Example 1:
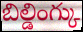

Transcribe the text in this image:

బిల్డింగ్కు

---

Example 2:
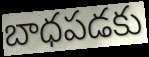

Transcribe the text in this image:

బాధపడకు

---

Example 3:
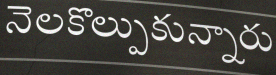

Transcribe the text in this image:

నెలకొల్పుకున్నారు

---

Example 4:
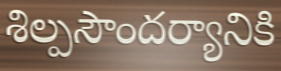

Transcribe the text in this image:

శిల్పసౌందర్యానికి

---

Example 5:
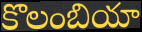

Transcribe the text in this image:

కొలంబియా